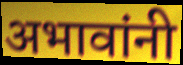
अभावांनी